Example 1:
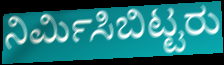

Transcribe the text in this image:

ನಿರ್ಮಿಸಿಬಿಟ್ಟರು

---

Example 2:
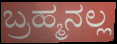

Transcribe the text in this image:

ಬ್ರಹ್ಮನಲ್ಲ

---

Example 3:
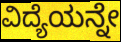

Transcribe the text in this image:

ವಿದ್ಯೆಯನ್ನೇ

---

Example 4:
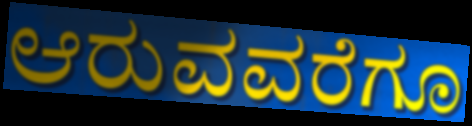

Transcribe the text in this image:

ಆರುವವರೆಗೂ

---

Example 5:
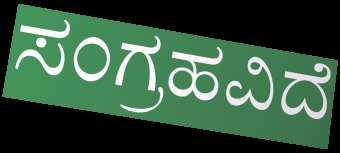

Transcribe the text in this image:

ಸಂಗ್ರಹವಿದೆ